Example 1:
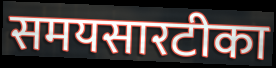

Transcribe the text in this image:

समयसारटीका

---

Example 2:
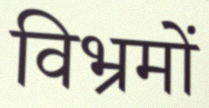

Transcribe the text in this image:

विभ्रमों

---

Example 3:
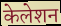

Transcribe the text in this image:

केलेशन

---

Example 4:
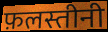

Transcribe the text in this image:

फ़लस्तीनी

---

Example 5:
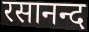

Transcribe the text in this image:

रसानन्द